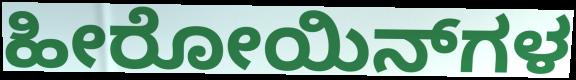
ಹೀರೋಯಿನ್‌ಗಳ